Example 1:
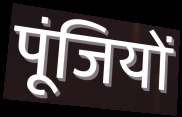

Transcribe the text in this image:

पूंजियों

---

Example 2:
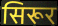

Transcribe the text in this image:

सिरूर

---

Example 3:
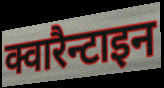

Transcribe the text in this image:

क्वारैन्टाइन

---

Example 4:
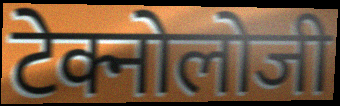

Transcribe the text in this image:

टेक्नोलोजी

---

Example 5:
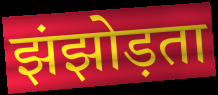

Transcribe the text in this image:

झंझोड़ता